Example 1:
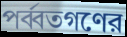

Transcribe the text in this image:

পর্ব্বতগণের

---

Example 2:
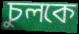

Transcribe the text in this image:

চুলকে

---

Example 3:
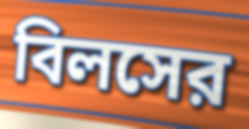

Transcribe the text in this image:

বিলসের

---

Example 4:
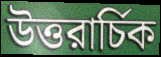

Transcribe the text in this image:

উত্তরার্চিক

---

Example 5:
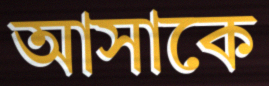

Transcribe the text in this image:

আসাকে